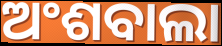
ଅଂଶବାଲା